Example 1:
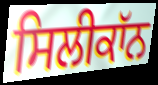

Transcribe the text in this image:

ਸਿਲੀਕਾੱਨ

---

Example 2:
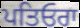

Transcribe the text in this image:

ਪਤਿਓਰਾ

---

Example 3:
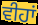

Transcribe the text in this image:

ਵੀਹਾਂ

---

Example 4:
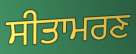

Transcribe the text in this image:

ਸੀਤਾਮਰਣ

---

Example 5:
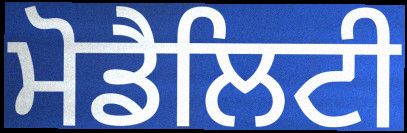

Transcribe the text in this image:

ਮੋਡੈਲਿਟੀ